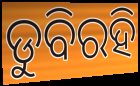
ଡୁବିରହି